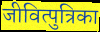
जीवित्पुत्रिका